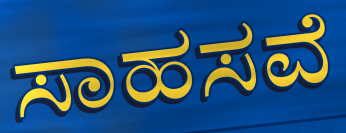
ಸಾಹಸವೆ